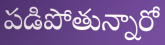
పడిపోతున్నారో